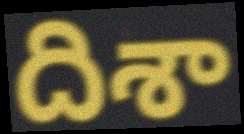
దిశా